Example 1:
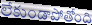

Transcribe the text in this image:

లేకుండాపోతోంది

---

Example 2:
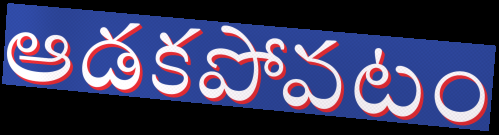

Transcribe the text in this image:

ఆడకపోవటం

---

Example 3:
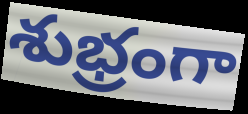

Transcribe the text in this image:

శుభ్రంగా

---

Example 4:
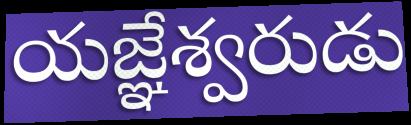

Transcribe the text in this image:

యజ్ఞేశ్వరుడు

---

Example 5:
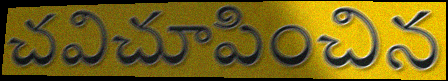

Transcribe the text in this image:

చవిచూపించిన